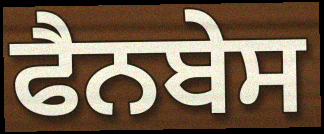
ਫੈਨਬੇਸ